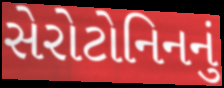
સેરોટોનિનનું